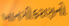
ખાનગીકરણનો